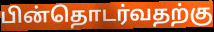
பின்தொடர்வதற்கு